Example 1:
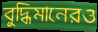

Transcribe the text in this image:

বুদ্ধিমানেরও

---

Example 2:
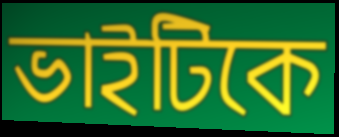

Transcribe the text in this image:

ভাইটিকে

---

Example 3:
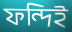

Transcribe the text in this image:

ফন্দিই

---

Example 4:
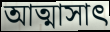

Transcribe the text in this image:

আত্মাসাৎ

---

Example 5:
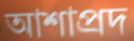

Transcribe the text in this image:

আশাপ্রদ